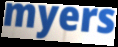
myers